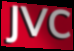
JVC